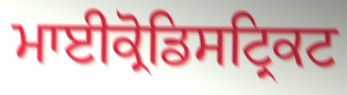
ਮਾਈਕ੍ਰੋਡਿਸਟ੍ਰਿਕਟ